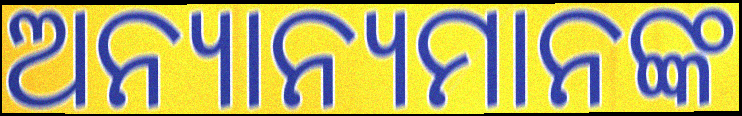
ଅନ୍ୟାନ୍ୟମାନଙ୍କ